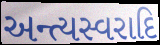
અન્ત્યસ્વરાદિ